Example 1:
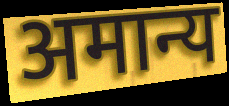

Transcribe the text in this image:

अमान्य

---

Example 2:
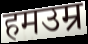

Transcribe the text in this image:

हमउम्र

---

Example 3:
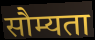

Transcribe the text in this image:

सौम्यता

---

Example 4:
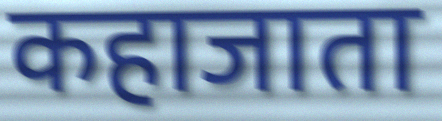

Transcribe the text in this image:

कहाजाता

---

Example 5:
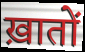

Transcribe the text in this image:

ख़ातों